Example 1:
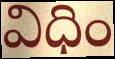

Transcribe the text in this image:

విధిం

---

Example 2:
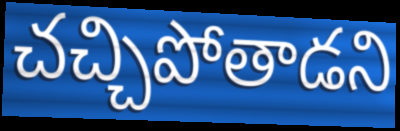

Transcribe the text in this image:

చచ్చిపోతాడని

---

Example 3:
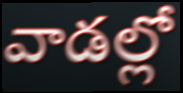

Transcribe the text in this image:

వాడల్లో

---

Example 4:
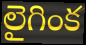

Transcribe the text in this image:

లైగింక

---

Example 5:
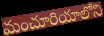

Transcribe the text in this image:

మంచూరియాలోని